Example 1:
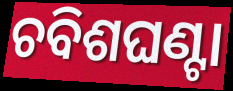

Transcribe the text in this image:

ଚବିଶଘଣ୍ଟା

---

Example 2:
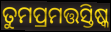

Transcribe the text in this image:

ତୁମପ୍ରମତ୍ତସ୍ତିଷ୍କ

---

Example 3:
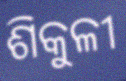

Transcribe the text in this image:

ଶିକୁଳୀ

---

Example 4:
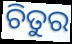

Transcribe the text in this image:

ଚିତୁର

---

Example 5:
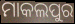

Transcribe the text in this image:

ମାକଲପୁର